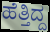
ಹೆತ್ತಿದ್ದ